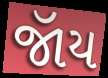
જૉય